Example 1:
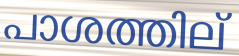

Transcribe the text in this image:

പാശത്തില്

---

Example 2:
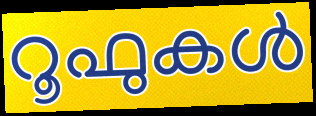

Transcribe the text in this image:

റൂഫുകൾ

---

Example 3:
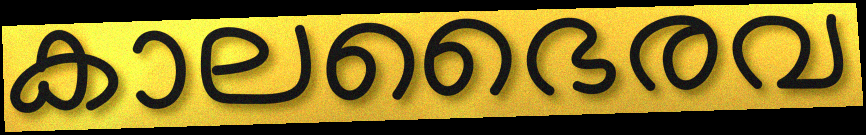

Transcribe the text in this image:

കാലഭൈരവ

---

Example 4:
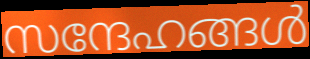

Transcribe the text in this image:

സന്ദേഹങ്ങൾ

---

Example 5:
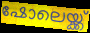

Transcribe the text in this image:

ഷോലെയ്ക്ക്